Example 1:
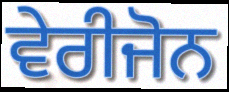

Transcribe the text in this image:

ਵੇਰੀਜੋਨ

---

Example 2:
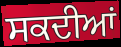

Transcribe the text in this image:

ਸਕਦੀਆਂ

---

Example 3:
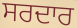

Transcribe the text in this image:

ਸਰਦਾਰ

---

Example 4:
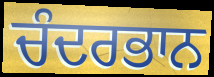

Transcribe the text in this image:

ਚੰਦਰਭਾਨ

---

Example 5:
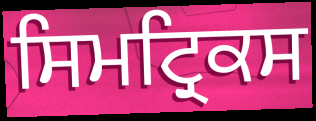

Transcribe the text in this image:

ਸਿਮਟ੍ਰਿਕਸ